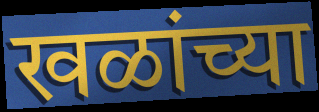
खळांच्या